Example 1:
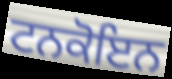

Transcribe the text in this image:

ਟਨਕੋਇਨ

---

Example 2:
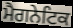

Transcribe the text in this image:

ਮੈਗਨੇਟਿਕ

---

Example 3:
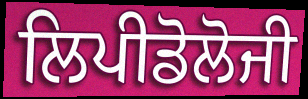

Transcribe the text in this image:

ਲਿਪੀਡੋਲੋਜੀ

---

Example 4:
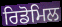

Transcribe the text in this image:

ਰਿਡੋਮਿਲ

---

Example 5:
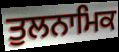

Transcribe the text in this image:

ਤੁਲਨਾਮਿਕ